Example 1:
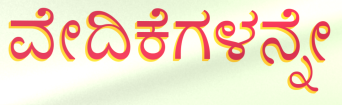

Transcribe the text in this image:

ವೇದಿಕೆಗಳನ್ನೇ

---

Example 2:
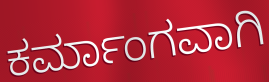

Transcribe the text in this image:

ಕರ್ಮಾಂಗವಾಗಿ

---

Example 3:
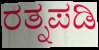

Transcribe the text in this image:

ರತ್ನಪಡಿ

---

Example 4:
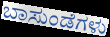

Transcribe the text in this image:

ಬಾಸುಂಡೆಗಳು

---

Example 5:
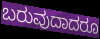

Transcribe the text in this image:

ಬರುವುದಾದರೂ